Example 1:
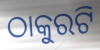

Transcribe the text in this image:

ଠାକୁରଟି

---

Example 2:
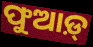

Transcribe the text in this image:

ଫୁଆଡ଼୍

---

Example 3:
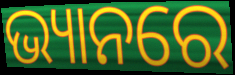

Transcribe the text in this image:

ଭ୍ୟାନରେ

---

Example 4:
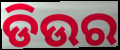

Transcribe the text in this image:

ଡିଉର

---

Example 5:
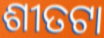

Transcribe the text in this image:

ଶୀତଟା